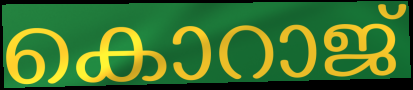
കൊറാജ്